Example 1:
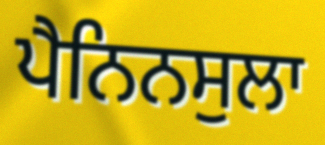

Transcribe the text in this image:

ਪੈਨਿਨਸੁਲਾ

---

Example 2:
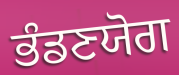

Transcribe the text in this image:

ਭੰਡਣਯੋਗ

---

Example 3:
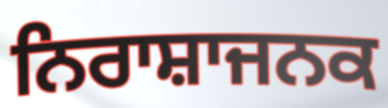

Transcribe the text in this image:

ਨਿਰਾਸ਼ਾਜਨਕ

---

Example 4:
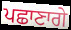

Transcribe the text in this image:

ਪਛਾਣਾਗੇ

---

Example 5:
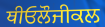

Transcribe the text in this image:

ਥੀਓਲੌਜੀਕਲ